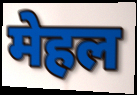
मेहल